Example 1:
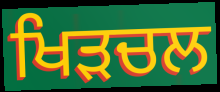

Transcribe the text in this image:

ਖਿੜਚਲ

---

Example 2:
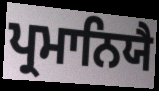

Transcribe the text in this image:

ਪ੍ਰਮਾਨਿਯੈ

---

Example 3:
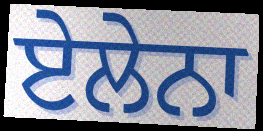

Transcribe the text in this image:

ਏਲੇਨਾ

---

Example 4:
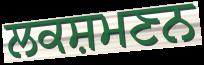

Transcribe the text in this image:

ਲਕਸ਼ਮਣਨ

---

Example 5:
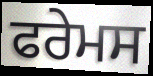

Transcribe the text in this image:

ਫਰੇਮਸ